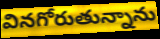
వినగోరుతున్నాను